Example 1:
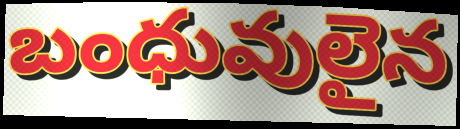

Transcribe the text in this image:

బంధువులైన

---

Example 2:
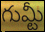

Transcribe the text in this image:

గుమ్టీ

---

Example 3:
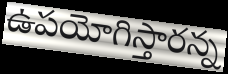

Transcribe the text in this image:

ఉపయోగిస్తారన్న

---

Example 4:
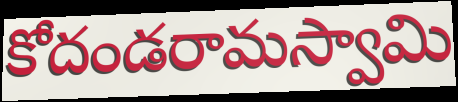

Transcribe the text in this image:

కోదండరామస్వామి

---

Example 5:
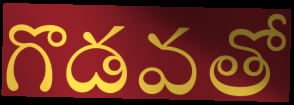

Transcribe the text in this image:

గొడవతో